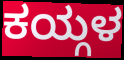
ಕಯ್ಗಳ